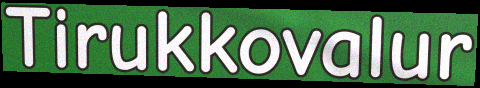
Tirukkovalur